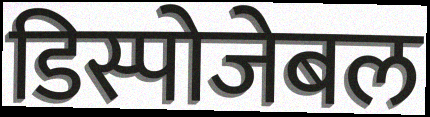
डिस्पोजेबल